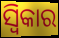
ସ୍ୱିକାର